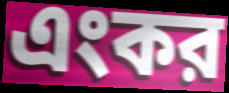
এংকর